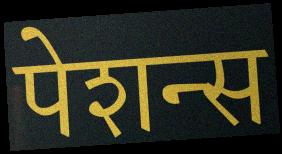
पेशन्स